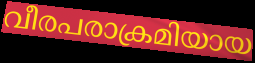
വീരപരാക്രമിയായ